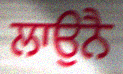
ਲਾਉਨੈ